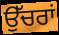
ਉੱਚਰਾਂ